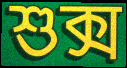
শুক্স